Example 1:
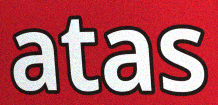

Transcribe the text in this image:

atas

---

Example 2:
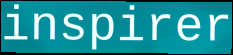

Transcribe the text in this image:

inspirer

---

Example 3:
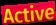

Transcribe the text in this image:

Active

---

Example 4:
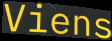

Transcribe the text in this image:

Viens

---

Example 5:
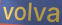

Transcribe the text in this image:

volva